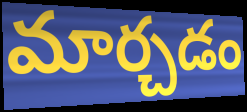
మార్చడం